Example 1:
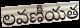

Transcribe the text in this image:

లవణీయత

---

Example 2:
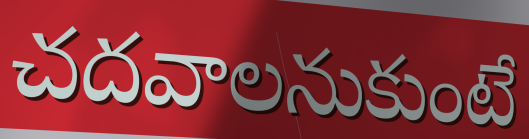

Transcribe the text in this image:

చదవాలనుకుంటే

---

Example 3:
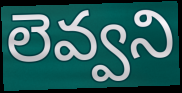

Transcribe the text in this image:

లెవ్వని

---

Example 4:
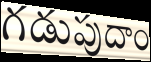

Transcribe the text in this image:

గడుపుదాం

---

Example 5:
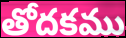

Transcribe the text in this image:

తోదకము